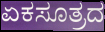
ಏಕಸೂತ್ರದ